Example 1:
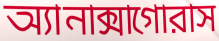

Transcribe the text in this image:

অ্যানাক্সাগোরাস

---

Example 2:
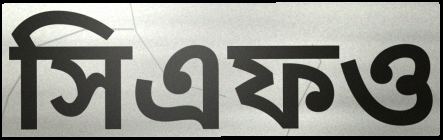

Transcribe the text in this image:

সিএফও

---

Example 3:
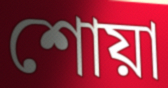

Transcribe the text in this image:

শোয়া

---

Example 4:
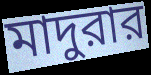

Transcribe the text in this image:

মাদুরার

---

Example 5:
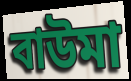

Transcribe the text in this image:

বাউমা